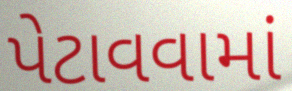
પેટાવવામાં